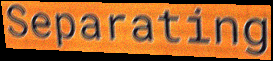
Separating